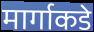
मार्गाकडे